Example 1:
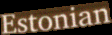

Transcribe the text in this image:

Estonian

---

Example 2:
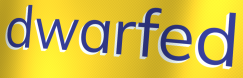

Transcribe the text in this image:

dwarfed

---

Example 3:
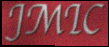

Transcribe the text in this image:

JMIC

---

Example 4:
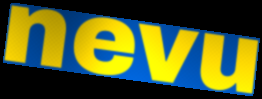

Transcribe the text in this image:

nevu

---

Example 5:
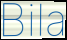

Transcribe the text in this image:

Bila